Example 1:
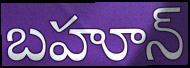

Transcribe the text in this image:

బహూన్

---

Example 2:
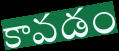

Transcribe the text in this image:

కావడం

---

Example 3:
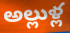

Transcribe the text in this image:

అల్లుళ్ల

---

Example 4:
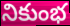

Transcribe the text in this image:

నికుంభ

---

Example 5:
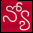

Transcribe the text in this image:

న్యో